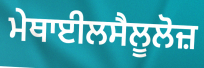
ਮੇਥਾਈਲਸੈਲੂਲੋਜ਼